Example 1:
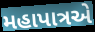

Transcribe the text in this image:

મહાપાત્રએ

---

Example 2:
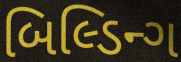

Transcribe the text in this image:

બિલ્ડિન્ગ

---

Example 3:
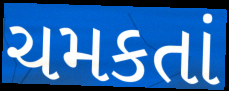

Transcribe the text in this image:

ચમકતાં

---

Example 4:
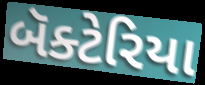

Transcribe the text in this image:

બૅક્ટેરિયા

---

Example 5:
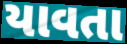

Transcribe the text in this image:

યાવતા